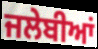
ਜਲੇਬੀਆਂ